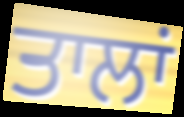
ਤਾਲਾਂ